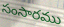
సంసారము